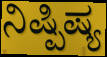
ನಿಷ್ಪಿಷ್ಯ